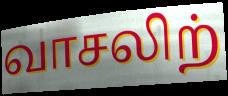
வாசலிற்